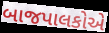
બાજપાલકોએ